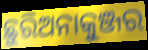
ଛୁରିଅନାକୁଞ୍ଜର